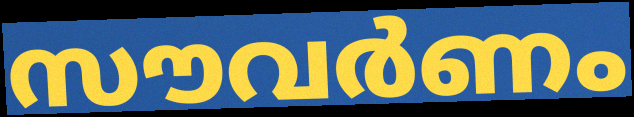
സൗവർണം